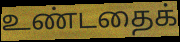
உண்டதைக்